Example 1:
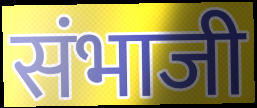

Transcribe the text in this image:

संभाजी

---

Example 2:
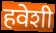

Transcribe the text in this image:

हवेशी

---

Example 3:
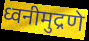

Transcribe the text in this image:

ध्वनीमुद्रणे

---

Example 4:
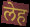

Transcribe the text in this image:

लेह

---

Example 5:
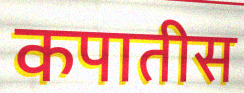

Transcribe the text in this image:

कपातीस